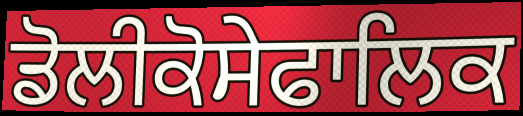
ਡੋਲੀਕੋਸੇਫਾਲਿਕ